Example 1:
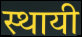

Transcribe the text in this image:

स्थायी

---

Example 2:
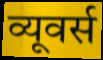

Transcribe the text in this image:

व्यूवर्स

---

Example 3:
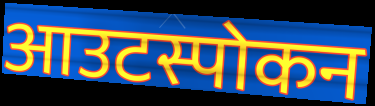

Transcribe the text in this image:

आउटस्पोकन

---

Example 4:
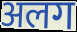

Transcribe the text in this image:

अलग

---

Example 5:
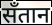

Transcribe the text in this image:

सँतान